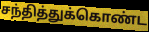
சந்தித்துக்கொண்ட